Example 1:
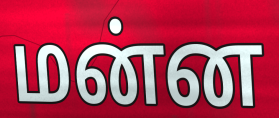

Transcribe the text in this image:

மன்ன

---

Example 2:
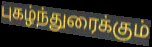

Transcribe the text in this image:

புகழ்ந்துரைக்கும்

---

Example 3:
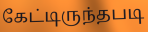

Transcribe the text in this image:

கேட்டிருந்தபடி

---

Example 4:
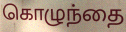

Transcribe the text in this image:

கொழுந்தை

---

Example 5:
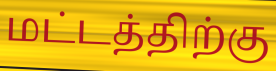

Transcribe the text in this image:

மட்டத்திற்கு